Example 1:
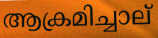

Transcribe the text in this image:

ആക്രമിച്ചാല്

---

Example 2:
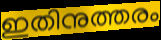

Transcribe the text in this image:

ഇതിനുത്തരം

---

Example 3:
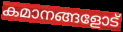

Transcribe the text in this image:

കമാനങ്ങളോട്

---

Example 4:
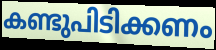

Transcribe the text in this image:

കണ്ടുപിടിക്കണം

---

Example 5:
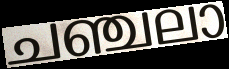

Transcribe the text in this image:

ചഞ്ചലാ